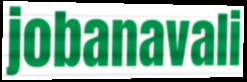
jobanavali